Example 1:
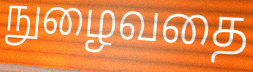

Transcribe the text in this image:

நுழைவதை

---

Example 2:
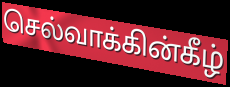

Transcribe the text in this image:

செல்வாக்கின்கீழ்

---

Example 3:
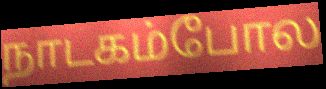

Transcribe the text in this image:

நாடகம்போல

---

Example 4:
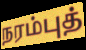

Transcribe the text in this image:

நரம்புத்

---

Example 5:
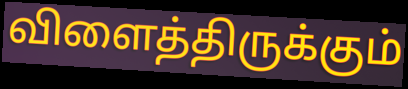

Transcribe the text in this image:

விளைத்திருக்கும்